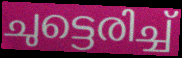
ചുട്ടെരിച്ച്